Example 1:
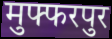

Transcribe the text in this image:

मुफ्फरपुर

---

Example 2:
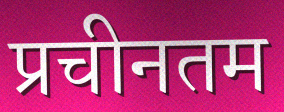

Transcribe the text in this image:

प्रचीनतम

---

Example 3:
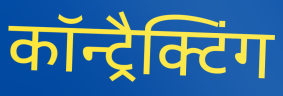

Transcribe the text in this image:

कॉन्ट्रैक्टिंग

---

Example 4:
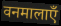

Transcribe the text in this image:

वनमालाएँ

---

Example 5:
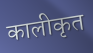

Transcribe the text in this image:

कालीकृत